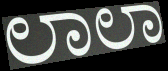
ಲಾಲಾ